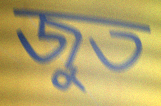
জুত